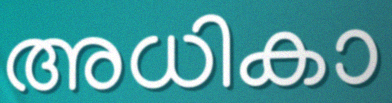
അധികാ